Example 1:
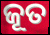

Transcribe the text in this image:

ଜୂତ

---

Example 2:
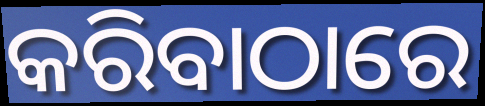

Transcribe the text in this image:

କରିବାଠାରେ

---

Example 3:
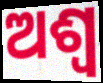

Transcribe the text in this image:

ଅଶ୍ବ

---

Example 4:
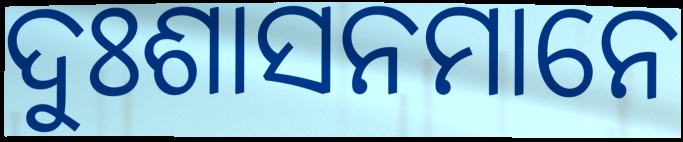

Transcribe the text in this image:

ଦୁଃଶାସନମାନେ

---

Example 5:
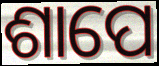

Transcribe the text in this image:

ଶାପେ